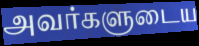
அவர்களுடைய